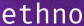
ethno